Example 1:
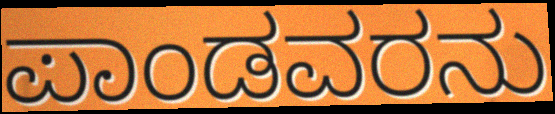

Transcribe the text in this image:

ಪಾಂಡವರನು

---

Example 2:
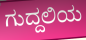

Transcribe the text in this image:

ಗುದ್ದಲಿಯ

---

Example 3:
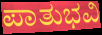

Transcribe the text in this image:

ಪಾತುಭವಿ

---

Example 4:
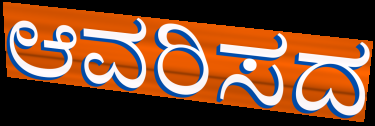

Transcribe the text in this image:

ಆವರಿಸದ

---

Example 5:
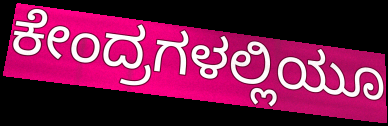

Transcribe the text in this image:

ಕೇಂದ್ರಗಳಲ್ಲಿಯೂ